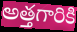
అత్తగారికి